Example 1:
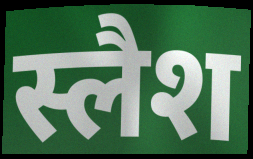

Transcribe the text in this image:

स्लैश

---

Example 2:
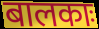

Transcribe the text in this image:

बालकाः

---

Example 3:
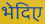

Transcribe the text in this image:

भेदिए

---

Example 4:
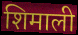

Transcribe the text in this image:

शिमाली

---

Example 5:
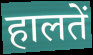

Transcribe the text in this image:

हालतें